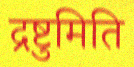
द्रष्टुमिति